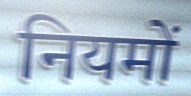
नियमों